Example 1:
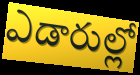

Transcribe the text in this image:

ఎడారుల్లో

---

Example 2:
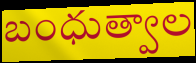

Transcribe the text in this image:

బంధుత్వాల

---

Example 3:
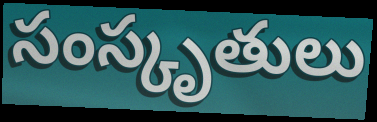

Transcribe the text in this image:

సంస్కృతులు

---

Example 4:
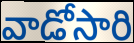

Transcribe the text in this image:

వాడోసారి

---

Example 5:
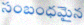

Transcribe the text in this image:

సంబంధమైన